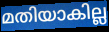
മതിയാകില്ല